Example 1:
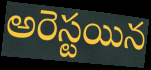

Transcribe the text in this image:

అరెస్టయిన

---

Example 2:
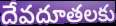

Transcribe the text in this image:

దేవదూతలకు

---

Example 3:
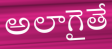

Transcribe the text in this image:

అలాగైతే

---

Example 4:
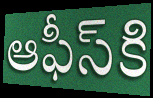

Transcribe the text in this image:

ఆఫీస్‌కి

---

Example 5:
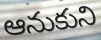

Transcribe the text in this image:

ఆనుకుని